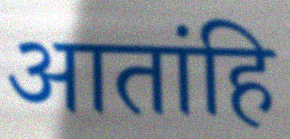
आतांहि